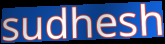
sudhesh